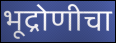
भूद्रोणीचा